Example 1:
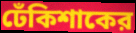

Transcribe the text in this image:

ঢেঁকিশাকের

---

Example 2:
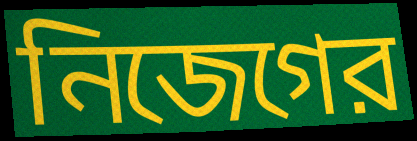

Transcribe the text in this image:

নিজেগের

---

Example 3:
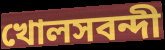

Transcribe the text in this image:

খোলসবন্দী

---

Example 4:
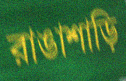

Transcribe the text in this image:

রাঙাশাড়ি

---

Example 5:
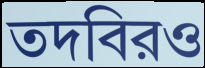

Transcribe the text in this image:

তদবিরও